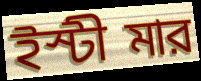
ইস্টীমার